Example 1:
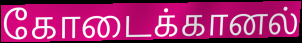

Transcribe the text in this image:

கோடைக்கானல்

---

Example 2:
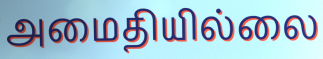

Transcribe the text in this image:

அமைதியில்லை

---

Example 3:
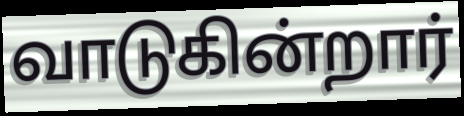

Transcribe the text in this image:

வாடுகின்றார்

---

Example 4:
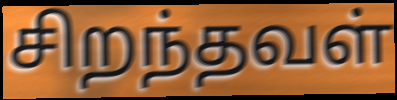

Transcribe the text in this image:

சிறந்தவள்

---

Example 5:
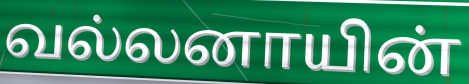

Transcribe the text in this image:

வல்லனாயின்